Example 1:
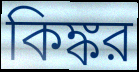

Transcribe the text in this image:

কিঙ্কর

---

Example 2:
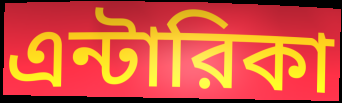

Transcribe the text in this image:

এন্টারিকা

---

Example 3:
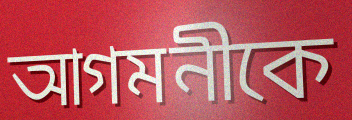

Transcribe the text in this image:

আগমনীকে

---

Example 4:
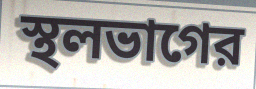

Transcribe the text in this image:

স্থলভাগের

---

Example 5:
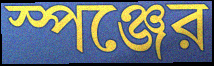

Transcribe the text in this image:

স্পঞ্জের